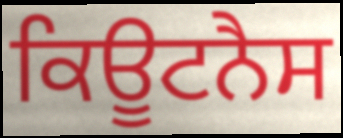
ਕਿਊਟਨੈਸ